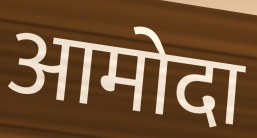
आमोदा